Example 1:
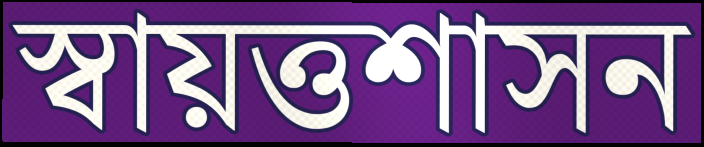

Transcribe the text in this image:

স্বায়ত্তশাসন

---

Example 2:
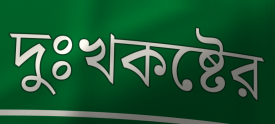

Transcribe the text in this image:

দুঃখকষ্টের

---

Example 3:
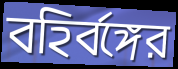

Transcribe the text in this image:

বহির্বঙ্গের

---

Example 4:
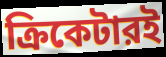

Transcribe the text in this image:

ক্রিকেটারই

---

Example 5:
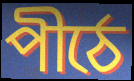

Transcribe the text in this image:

পীঠে